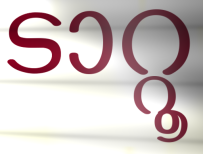
ടാറ്റൂ